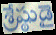
శ్రేష్ఠుడై